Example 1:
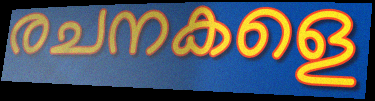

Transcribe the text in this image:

രചനകളെ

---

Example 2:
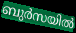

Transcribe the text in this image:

ബുർസയിൽ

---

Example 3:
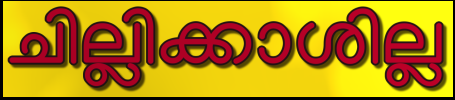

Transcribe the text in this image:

ചില്ലിക്കാശില്ല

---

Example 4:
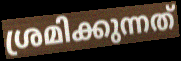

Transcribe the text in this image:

ശ്രമിക്കുന്നത്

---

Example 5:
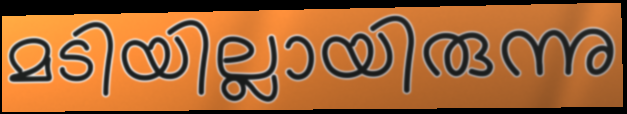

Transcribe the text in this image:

മടിയില്ലായിരുന്നു